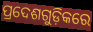
ପ୍ରଦେଶଗୁଡ଼ିକରେ